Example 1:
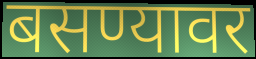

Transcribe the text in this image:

बसण्यावर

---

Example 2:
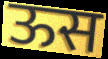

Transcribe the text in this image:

ऊस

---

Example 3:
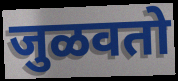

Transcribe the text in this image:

जुळवतो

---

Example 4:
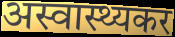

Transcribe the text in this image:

अस्वास्थ्यकर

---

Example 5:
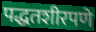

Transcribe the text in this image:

पद्धतशीरपणे